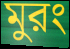
মুরং